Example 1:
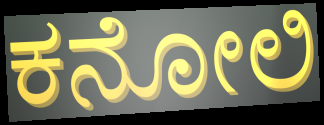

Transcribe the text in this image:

ಕನೋಲಿ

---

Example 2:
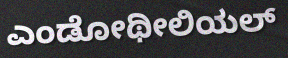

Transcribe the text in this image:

ಎಂಡೋಥೀಲಿಯಲ್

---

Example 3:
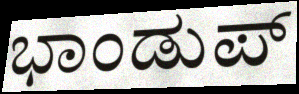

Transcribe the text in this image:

ಭಾಂಡುಪ್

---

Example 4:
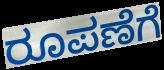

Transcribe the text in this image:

ರೂಪಣೆಗೆ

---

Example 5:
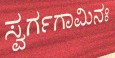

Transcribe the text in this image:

ಸ್ವರ್ಗಗಾಮಿನಃ